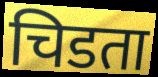
चिडता